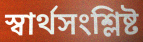
স্বার্থসংশ্লিষ্ট